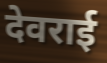
देवराई